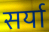
सर्या